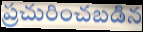
ప్రచురించబడిన